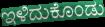
ಇಳಿದುಕೊಂಡು